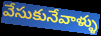
వేసుకునేవాళ్ళు